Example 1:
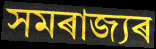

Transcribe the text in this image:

সমৰাজ্যৰ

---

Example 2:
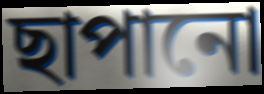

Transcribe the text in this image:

ছাপানো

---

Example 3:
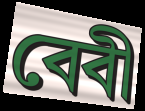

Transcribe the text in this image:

বেবী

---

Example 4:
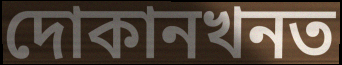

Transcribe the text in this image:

দোকানখনত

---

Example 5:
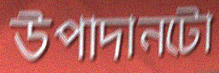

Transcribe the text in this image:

উপাদানটো